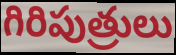
గిరిపుత్రులు